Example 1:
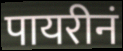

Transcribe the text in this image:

पायरीनं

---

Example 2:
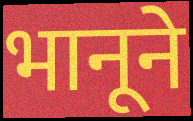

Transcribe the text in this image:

भानूने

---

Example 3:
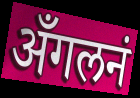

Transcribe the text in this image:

अँगलनं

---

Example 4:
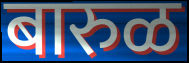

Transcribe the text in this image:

बारुळ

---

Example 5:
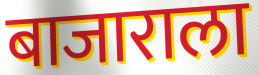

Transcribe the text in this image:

बाजाराला